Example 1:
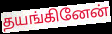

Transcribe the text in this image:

தயங்கினேன்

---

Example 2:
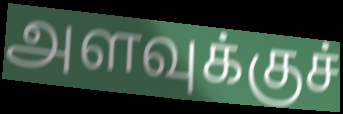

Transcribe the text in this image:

அளவுக்குச்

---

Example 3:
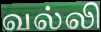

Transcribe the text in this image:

வல்லி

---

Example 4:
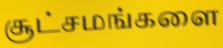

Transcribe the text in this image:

சூட்சமங்களை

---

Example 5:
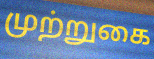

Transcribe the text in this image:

முற்றுகை